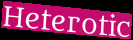
Heterotic